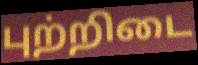
புற்றிடை